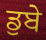
ਡੁਬੇ